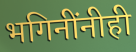
भगिनींनीही